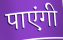
पाएंगी